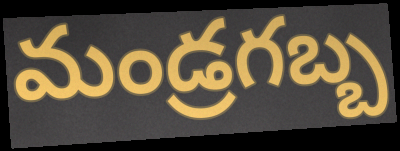
మండ్రగబ్బ